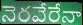
నెరవేరేనా